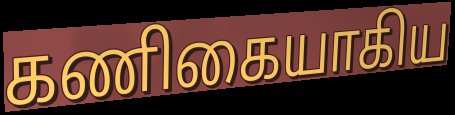
கணிகையாகிய